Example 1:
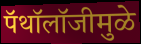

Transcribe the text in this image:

पॅथॉलॉजीमुळे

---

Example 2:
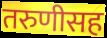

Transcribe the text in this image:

तरुणीसह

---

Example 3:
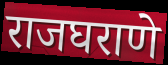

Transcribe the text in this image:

राजघराणे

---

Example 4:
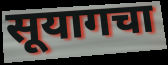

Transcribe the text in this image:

सूयागचा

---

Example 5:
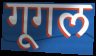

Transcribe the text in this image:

गूगल